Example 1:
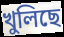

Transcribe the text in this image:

খুলিছে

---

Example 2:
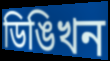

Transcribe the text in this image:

ডিঙিখন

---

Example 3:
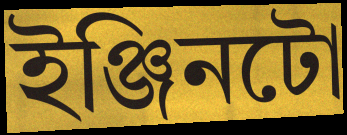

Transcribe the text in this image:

ইঞ্জিনটো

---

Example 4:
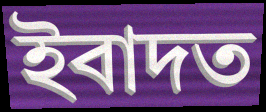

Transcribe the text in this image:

ইবাদত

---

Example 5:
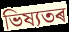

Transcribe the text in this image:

ভিষ্যতৰ